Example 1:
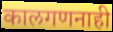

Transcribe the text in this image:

कालगणनाही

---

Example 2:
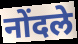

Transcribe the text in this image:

नोंदले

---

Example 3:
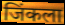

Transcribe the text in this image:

जिंकला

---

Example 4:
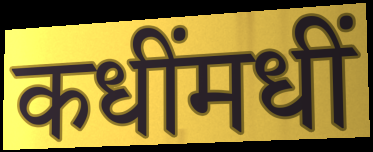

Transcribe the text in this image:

कधींमधीं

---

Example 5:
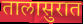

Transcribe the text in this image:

तालासुरात